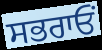
ਸਭਰਾਓਂ